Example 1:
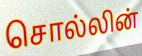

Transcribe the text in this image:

சொல்லின்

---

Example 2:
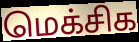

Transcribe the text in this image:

மெக்சிக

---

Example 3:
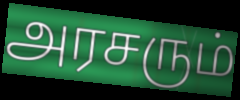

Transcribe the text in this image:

அரசரும்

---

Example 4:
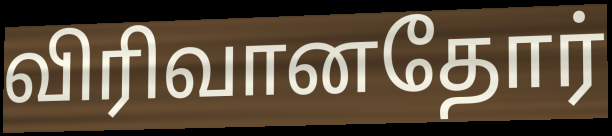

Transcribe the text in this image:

விரிவானதோர்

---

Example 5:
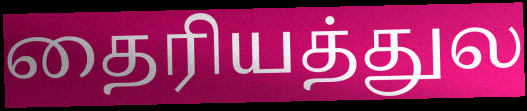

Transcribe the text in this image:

தைரியத்துல